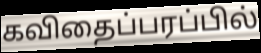
கவிதைப்பரப்பில்